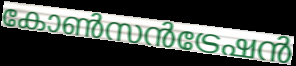
കോൺസൻട്രേഷൻ